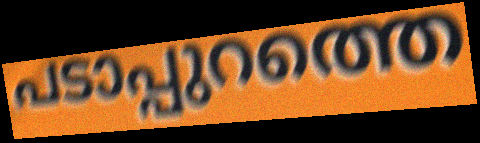
പടാപ്പുറത്തെ